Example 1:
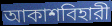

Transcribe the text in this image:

আকাশবিহারী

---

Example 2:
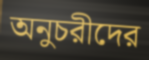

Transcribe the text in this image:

অনুচরীদের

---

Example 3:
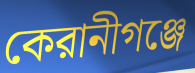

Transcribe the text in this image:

কেরানীগঞ্জে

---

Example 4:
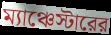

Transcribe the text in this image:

ম্যাঞ্চেস্টারের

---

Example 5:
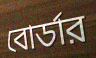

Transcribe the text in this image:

বোর্ডার